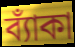
ব্যাঁকা